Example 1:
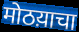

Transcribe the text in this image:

मोठय़ाचा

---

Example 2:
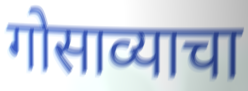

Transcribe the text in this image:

गोसाव्याचा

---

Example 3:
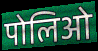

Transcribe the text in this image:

पोलिओ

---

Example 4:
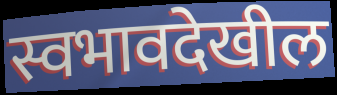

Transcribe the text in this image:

स्वभावदेखील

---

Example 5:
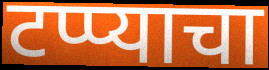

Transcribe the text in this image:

टप्प्याचा